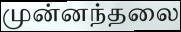
முன்னந்தலை